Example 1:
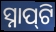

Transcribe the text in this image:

ସ୍ନାପ୍‍ଟି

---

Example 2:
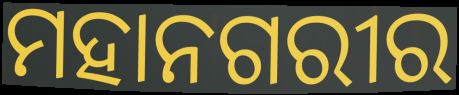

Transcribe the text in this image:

ମହାନଗରୀର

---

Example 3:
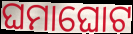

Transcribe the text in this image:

ଘମାଘୋଟ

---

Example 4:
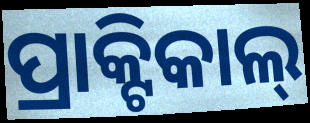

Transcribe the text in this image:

ପ୍ରାକ୍ଟିକାଲ୍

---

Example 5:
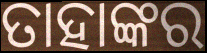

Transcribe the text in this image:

ତାହାଙ୍କର